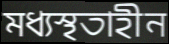
মধ্যস্থতাহীন